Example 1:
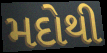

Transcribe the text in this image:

મદોથી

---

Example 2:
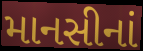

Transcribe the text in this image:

માનસીનાં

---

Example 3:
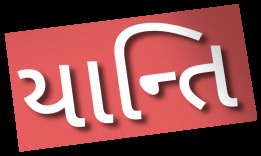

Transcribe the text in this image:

યાન્તિ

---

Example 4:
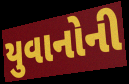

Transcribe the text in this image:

યુવાનોની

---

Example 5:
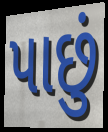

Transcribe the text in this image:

પાછું